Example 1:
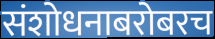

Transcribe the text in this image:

संशोधनाबरोबरच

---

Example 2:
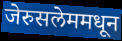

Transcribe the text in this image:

जेरुसलेममधून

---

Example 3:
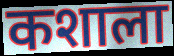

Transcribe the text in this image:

कशाला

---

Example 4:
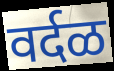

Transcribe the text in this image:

वर्दळ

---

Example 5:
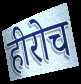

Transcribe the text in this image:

हीरोच